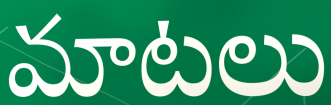
మాటలు